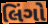
લિંગો